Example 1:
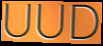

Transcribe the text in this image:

UUD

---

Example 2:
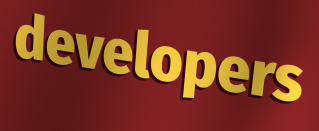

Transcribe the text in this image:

developers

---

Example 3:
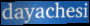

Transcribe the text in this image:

dayachesi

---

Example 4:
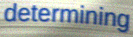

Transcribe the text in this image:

determining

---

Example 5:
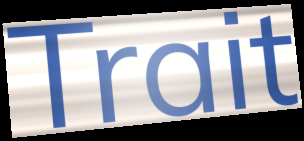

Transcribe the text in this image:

Trait